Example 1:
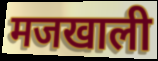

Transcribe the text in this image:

मजखाली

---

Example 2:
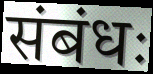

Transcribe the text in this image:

संबंधः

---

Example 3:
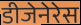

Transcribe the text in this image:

डीजेनेरेस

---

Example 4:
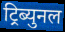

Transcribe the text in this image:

ट्रिब्युनल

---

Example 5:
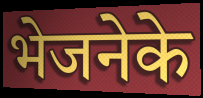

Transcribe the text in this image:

भेजनेके